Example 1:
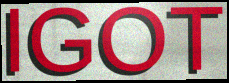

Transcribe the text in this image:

IGOT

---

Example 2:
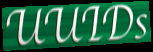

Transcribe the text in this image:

UUIDs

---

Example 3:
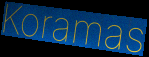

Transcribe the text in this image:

Koramas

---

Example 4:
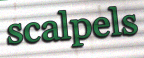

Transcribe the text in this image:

scalpels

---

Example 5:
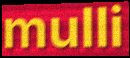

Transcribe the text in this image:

mulli